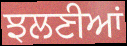
ਝਲਣੀਆਂ